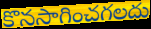
కొనసాగించగలదు